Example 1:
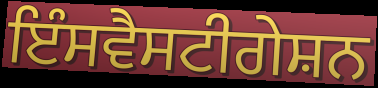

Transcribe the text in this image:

ਇੰਸਵੈਸਟੀਗੇਸ਼ਨ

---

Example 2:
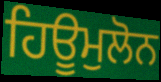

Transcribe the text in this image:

ਹਿਊਮੁਲੋਨ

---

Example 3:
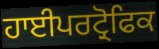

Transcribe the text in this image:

ਹਾਈਪਰਟ੍ਰੋਫਿਕ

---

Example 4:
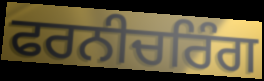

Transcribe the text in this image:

ਫਰਨੀਚਰਿੰਗ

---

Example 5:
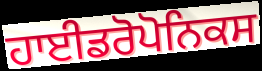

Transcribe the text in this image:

ਹਾਈਡਰੋਪੋਨਿਕਸ